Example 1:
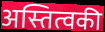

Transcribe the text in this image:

अस्तित्वकी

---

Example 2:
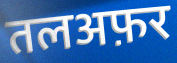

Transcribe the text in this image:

तलअफ़र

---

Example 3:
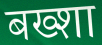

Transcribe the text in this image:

बख्शा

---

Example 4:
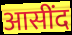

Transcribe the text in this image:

आसींद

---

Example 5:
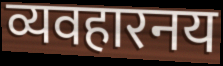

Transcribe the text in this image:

व्यवहारनय